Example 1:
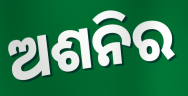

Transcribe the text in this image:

ଅଶନିର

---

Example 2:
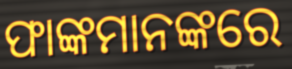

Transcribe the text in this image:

ଫାଙ୍କମାନଙ୍କରେ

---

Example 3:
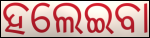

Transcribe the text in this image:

ହଲେଇବା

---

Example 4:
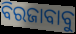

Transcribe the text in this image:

ବିରଜାବାବୁ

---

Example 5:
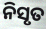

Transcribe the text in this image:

ନିସୃତ